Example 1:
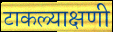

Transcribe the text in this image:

टाकल्याक्षणी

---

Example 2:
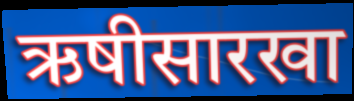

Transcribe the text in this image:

ऋषीसारखा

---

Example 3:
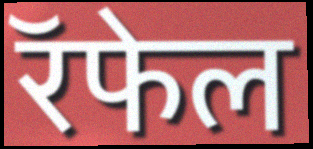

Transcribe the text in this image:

रॅफेल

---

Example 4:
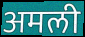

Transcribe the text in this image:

अमली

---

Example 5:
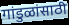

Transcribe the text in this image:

गांडुळांसाठी